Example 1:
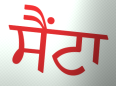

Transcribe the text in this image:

ਸੈਂਟਾ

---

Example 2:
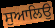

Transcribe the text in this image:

ਸੁਆਲਿਉ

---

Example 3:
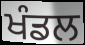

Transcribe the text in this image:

ਖੰਡਲ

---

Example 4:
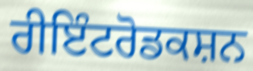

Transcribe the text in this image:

ਰੀਇੰਟਰੋਡਕਸ਼ਨ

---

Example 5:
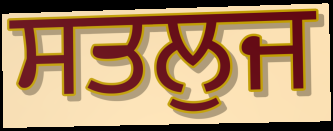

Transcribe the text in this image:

ਸਤਲੁਜ